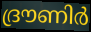
ദ്രൗണിർ